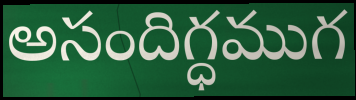
అసందిగ్ధముగ